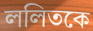
ললিতকে